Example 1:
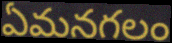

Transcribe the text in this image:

ఏమనగలం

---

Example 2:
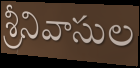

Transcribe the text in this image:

శ్రీనివాసుల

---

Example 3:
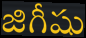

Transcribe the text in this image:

జిగీషు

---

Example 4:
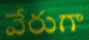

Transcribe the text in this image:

వేరుగా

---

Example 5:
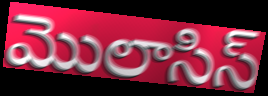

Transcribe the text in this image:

మొలాసిస్